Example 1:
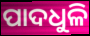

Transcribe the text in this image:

ପାଦଧୁଳି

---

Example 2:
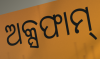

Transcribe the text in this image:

ଅକ୍ସଫାମ୍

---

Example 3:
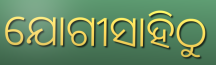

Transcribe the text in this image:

ଯୋଗୀସାହିଠୁ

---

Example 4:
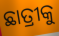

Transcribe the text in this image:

ଛାତ୍ରୀକୁ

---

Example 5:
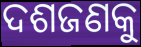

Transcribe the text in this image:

ଦଶଜଣକୁ